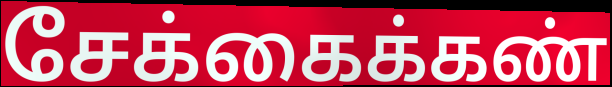
சேக்கைக்கண்